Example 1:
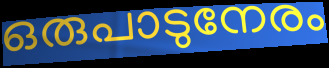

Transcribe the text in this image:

ഒരുപാടുനേരം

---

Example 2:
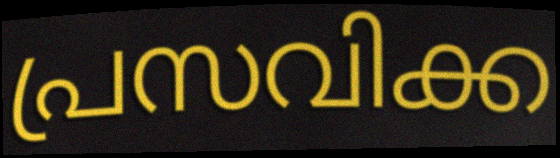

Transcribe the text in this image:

പ്രസവിക്ക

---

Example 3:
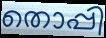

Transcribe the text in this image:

തൊപ്പി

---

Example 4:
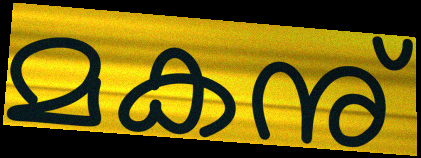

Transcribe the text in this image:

മകനു്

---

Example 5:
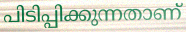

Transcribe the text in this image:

പിടിപ്പിക്കുന്നതാണ്